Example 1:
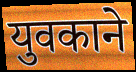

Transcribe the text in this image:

युवकाने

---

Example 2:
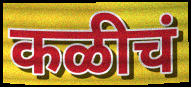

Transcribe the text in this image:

कळीचं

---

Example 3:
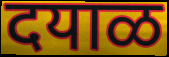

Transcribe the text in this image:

दयाळ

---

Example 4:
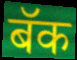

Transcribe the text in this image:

बॅक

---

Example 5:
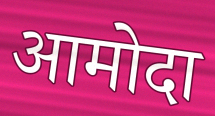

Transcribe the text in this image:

आमोदा